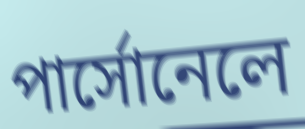
পার্সোনেলে